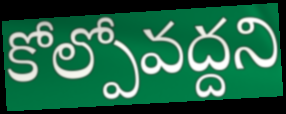
కోల్పోవద్దని